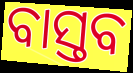
ବାସ୍ତବ